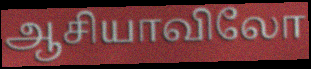
ஆசியாவிலோ